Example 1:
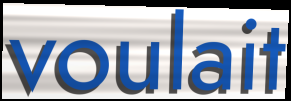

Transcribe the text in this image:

voulait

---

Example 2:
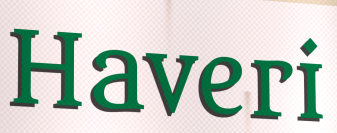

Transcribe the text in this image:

Haveri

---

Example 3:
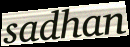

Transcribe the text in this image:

sadhan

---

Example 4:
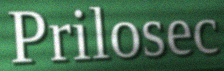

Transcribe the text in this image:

Prilosec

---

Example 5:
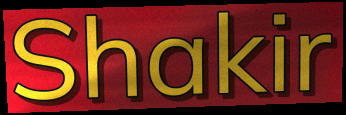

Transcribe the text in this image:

Shakir